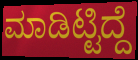
ಮಾಡಿಟ್ಟಿದ್ದೆ